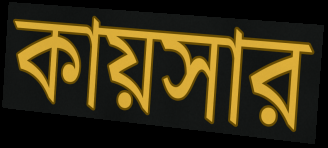
কায়সার